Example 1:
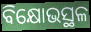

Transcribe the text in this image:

ବିକ୍ଷୋଭସ୍ଥଳ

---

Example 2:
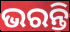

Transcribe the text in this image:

ଭରନ୍ତି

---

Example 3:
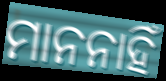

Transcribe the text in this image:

ମାନନାହିଁ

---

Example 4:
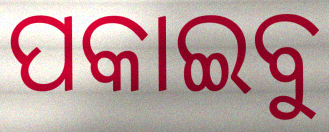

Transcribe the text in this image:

ପକାଇବୁ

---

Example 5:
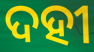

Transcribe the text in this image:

ଦହୀ